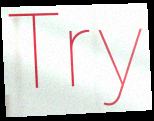
Try